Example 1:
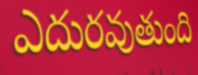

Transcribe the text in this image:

ఎదురవుతుంది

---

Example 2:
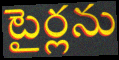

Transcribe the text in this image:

టైర్లను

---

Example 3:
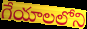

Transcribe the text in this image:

గేయాలలోని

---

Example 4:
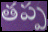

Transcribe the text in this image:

తప్ప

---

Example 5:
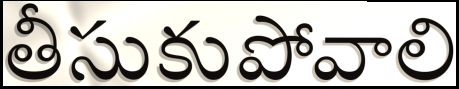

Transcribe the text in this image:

తీసుకుపోవాలి